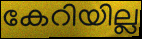
കേറിയില്ല